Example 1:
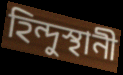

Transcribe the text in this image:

হিন্দুস্থানী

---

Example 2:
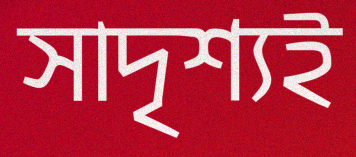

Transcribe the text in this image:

সাদৃশ্যই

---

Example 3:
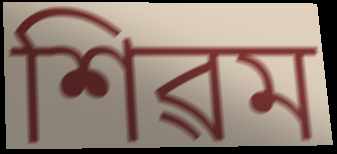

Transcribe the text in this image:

শিৱম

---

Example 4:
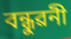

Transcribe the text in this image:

বন্ধুৱনী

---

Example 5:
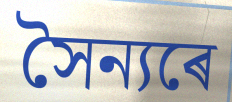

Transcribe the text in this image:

সৈন্যৰে